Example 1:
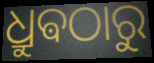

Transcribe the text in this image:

ଧ୍ରୁଵଠାରୁ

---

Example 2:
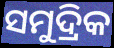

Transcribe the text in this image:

ସମୁଦ୍ରିକ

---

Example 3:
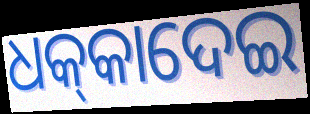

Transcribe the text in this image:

ଧକ୍‌କାଦେଇ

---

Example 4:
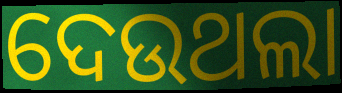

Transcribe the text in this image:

ଦେଉଥଲା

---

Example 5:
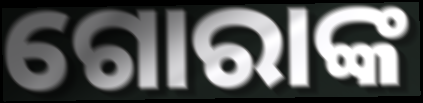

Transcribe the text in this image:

ଗୋରାଙ୍କ